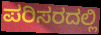
ಪರಿಸರದಲ್ಲಿ